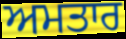
ਅਮਤਾਰ